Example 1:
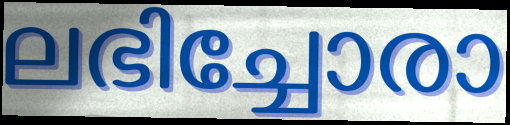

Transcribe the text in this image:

ലഭിച്ചോരാ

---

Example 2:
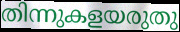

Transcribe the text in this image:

തിന്നുകളയരുതു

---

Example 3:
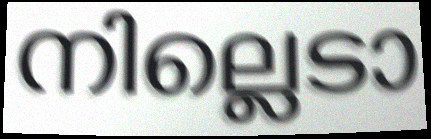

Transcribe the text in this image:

നില്ലെടാ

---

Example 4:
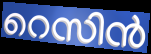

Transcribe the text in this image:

റെസിൻ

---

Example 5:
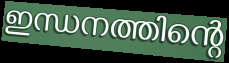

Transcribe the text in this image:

ഇന്ധനത്തിന്റെ